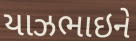
યાઝભાઇને